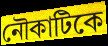
নৌকাটিকে